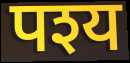
पश्य